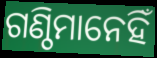
ଗଣ୍ଠିମାନେହିଁ